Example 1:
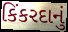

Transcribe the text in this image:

કિંકરદાનું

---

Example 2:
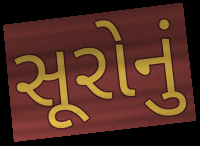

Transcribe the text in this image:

સૂરોનું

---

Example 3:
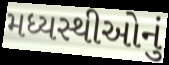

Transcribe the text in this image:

મધ્યસ્થીઓનું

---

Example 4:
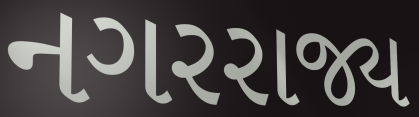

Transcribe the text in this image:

નગરરાજ્ય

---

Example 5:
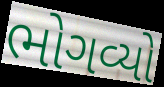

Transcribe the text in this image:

ભોગવ્યો